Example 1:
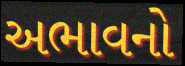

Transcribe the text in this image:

અભાવનો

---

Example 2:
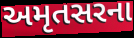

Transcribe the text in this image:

અમૃતસરના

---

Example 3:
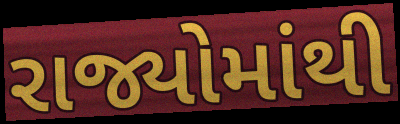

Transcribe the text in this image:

રાજ્યોમાંથી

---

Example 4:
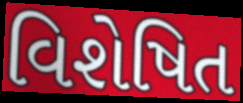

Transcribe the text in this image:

વિશેષિત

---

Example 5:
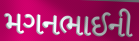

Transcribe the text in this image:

મગનભાઈની